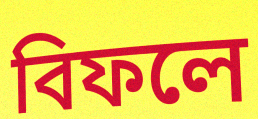
বিফলে